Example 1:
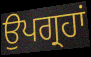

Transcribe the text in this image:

ਉਪਗ੍ਰਹਾਂ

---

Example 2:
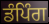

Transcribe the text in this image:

ਡੰਪਿੰਗ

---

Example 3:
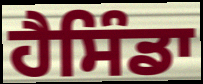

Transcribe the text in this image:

ਹੈਸਿੰਡਾ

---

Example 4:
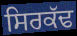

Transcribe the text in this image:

ਸਿਰਕੱਢ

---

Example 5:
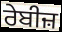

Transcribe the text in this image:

ਰੇਬੀਜ਼